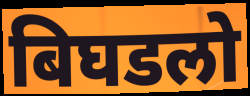
बिघडलो